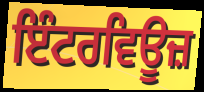
ਇੰਟਰਵਿਊਜ਼